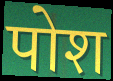
पोश